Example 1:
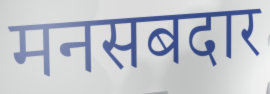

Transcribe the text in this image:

मनसबदार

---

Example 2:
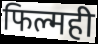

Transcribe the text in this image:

फिल्मही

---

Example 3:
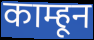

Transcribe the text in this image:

काम्हून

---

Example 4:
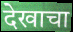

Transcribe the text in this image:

देखाचा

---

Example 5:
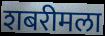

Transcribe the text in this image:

शबरीमला